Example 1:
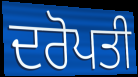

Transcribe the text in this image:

ਦਰੋਪਤੀ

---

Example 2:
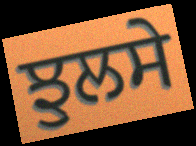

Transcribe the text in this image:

ਝੁਲਸੇ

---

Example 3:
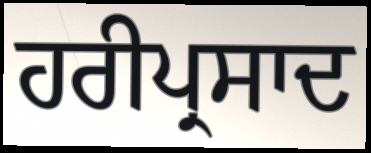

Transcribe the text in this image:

ਹਰੀਪ੍ਰਸਾਦ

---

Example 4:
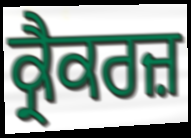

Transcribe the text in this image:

ਕ੍ਰੈਕਰਜ਼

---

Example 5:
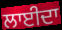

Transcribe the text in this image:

ਲਾਈਦਾ